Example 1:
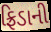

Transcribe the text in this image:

ફ્રિડાની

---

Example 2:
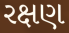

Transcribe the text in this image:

રક્ષણ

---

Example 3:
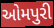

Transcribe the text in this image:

ઓમપુરી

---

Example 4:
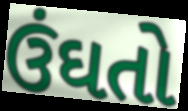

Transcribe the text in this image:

ઉંઘતો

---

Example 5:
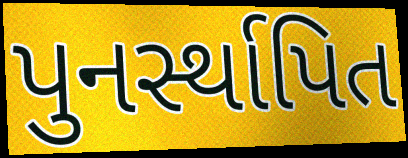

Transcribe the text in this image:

પુનર્સ્થાપિત